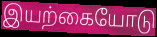
இயற்கையோடு